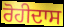
ਰੋਹੀਦਾਸ